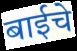
बाईचे